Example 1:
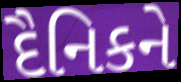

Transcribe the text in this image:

દૈનિકને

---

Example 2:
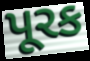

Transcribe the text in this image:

પૂરક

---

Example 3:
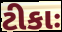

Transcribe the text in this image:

ટીકાઃ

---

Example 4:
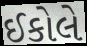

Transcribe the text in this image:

ઈકોલે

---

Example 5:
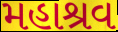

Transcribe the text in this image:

મહાશ્રવ